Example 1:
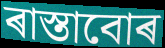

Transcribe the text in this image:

ৰাস্তাবোৰ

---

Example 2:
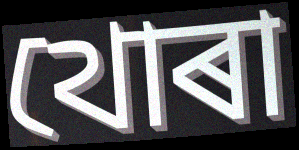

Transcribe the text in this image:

থোৰা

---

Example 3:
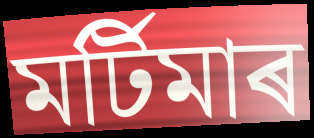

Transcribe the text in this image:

মৰ্টিমাৰ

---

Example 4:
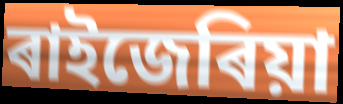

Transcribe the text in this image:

ৰাইজেৰিয়া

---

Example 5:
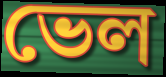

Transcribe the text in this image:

ভেল